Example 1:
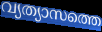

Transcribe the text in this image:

വ്യത്യാസത്തെ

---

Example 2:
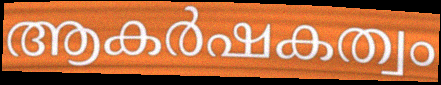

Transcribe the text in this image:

ആകർഷകത്വം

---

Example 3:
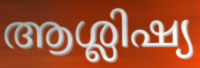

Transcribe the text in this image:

ആശ്ലിഷ്യ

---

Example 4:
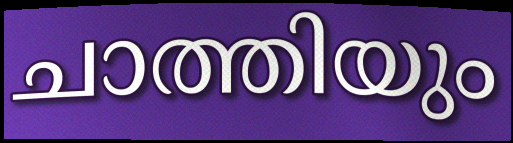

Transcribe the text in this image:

ചാത്തിയും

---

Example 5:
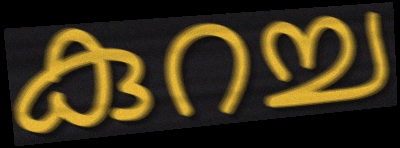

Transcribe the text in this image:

കുറച്ച